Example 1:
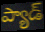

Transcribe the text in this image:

ప్యాడ్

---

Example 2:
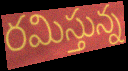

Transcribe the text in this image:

రమిస్తున్న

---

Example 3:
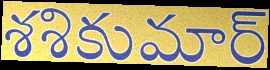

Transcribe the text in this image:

శశికుమార్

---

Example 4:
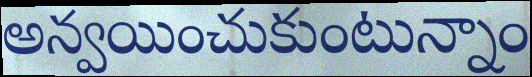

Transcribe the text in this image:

అన్వయించుకుంటున్నాం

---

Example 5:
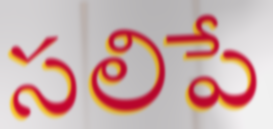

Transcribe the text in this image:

సలిపే